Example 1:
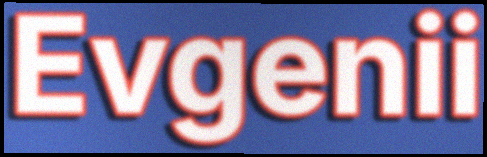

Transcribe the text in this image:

Evgenii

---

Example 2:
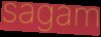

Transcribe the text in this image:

sagam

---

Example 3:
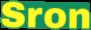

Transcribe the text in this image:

Sron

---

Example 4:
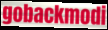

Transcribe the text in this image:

gobackmodi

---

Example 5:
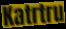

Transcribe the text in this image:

Katrtru